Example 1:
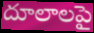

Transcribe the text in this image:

దూలాలపై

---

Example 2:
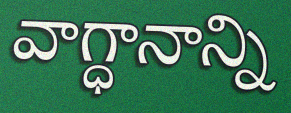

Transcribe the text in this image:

వాగ్ధానాన్ని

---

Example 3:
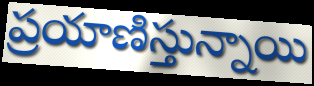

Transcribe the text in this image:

ప్రయాణిస్తున్నాయి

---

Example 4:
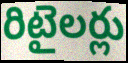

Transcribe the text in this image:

రిటైలర్లు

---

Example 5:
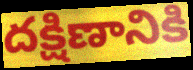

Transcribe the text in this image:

దక్షిణానికి